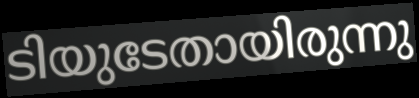
ടിയുടേതായിരുന്നു